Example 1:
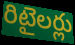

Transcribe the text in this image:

రిటైలర్లు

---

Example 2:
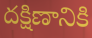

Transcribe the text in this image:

దక్షిణానికి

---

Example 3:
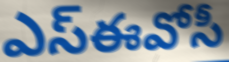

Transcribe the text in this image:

ఎస్ఈవోసీ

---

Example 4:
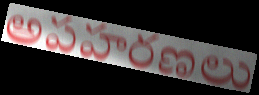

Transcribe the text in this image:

అపహరణలు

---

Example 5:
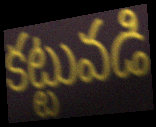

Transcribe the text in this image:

కట్టువడి